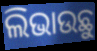
ଲିଭାଉଛୁ